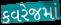
કવરેજમાં